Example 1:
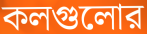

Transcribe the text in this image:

কলগুলোর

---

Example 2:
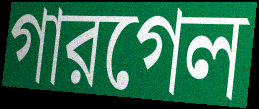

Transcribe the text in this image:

গারগেল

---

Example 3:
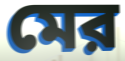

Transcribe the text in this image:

মের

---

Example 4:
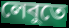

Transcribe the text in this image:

লেবুতে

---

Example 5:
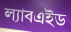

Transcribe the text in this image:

ল্যাবএইড